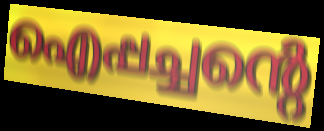
ഐപ്പച്ചന്റെ